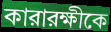
কারারক্ষীকে